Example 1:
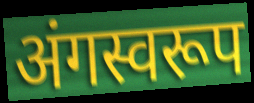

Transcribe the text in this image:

अंगस्वरूप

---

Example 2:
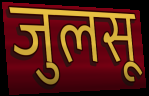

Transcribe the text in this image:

जुलसू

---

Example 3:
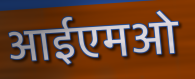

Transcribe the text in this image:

आईएमओ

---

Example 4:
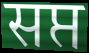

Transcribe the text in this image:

सप्त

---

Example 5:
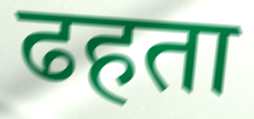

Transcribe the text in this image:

ढहता